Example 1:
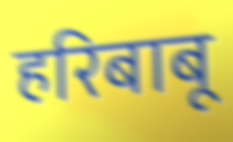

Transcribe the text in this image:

हरिबाबू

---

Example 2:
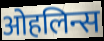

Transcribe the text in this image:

ओहलिन्स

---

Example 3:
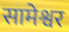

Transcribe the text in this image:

सामेश्वर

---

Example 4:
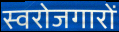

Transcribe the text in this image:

स्वरोजगारों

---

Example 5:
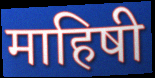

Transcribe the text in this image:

माहिषी